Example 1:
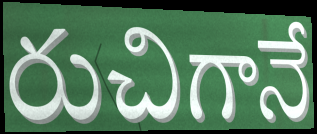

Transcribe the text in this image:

రుచిగానే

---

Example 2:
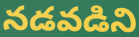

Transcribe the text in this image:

నడవడిని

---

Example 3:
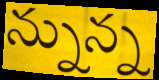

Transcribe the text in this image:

న్నున్న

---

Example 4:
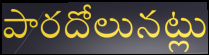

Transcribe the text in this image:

పారదోలునట్లు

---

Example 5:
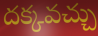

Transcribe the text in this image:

దక్కవచ్చు